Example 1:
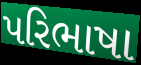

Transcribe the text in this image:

પરિભાષા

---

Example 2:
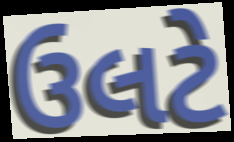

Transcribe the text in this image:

ઉલટે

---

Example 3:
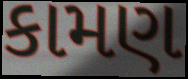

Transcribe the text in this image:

કામણ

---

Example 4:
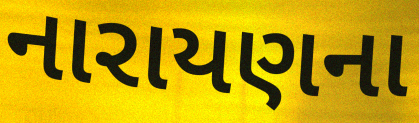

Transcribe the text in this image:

નારાયણના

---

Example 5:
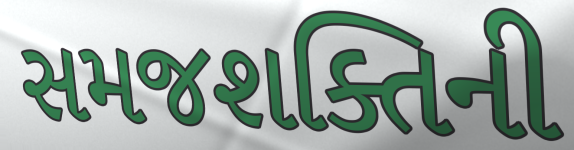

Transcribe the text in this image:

સમજશક્તિની